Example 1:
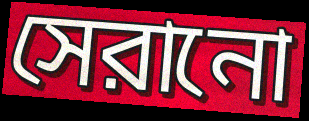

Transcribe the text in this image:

সেরানো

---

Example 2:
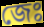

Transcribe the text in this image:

জেঃ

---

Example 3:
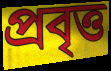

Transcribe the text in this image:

প্রবৃত্ত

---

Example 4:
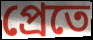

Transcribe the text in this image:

প্রেতে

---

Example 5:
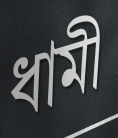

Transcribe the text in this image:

ধামী